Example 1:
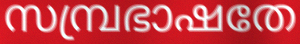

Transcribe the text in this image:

സമ്പ്രഭാഷതേ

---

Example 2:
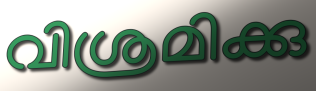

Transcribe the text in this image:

വിശ്രമിക്കു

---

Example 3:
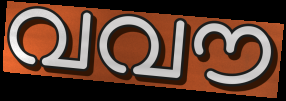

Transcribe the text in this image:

വവൗ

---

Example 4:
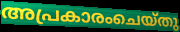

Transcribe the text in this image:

അപ്രകാരംചെയ്തു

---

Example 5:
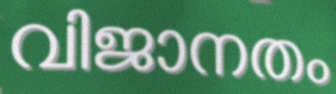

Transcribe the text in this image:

വിജാനതം